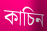
কাচিন